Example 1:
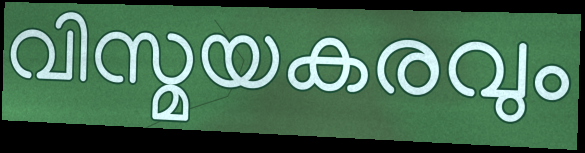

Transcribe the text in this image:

വിസ്മയകരവും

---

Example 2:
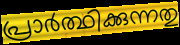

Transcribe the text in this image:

പ്രാർത്ഥിക്കുന്നതു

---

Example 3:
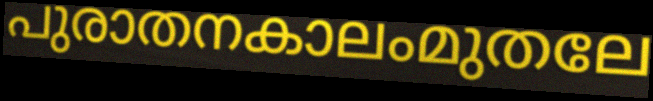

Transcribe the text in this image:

പുരാതനകാലംമുതലേ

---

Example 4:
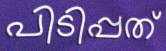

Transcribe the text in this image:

പിടിപ്പത്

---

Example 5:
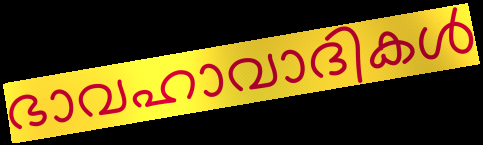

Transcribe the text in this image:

ഭാവഹാവാദികൾ